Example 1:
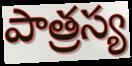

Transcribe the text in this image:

పాత్రస్య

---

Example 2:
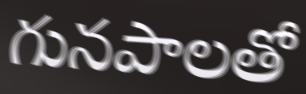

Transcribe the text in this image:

గునపాలతో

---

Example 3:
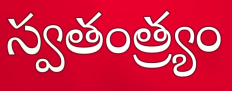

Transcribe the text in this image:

స్వతంత్ర్యం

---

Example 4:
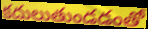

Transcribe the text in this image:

కదులుతుండడంతో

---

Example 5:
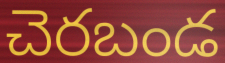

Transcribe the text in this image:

చెరబండ